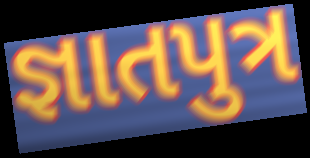
જ્ઞાતપુત્ર